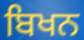
ਬਿਖਨ